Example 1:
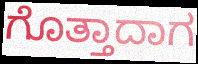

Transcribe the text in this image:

ಗೊತ್ತಾದಾಗ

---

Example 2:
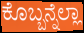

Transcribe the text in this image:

ಕೊಬ್ಬನ್ನೆಲ್ಲಾ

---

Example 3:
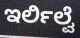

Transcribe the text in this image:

ಇರ್ಲಿಲ್ವೆ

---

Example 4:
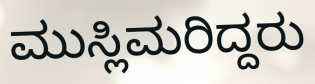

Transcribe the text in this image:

ಮುಸ್ಲಿಮರಿದ್ದರು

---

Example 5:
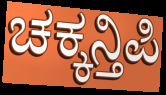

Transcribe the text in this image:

ಚಕ್ಕನ್ತಿಪಿ